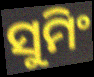
ସୁମିଂ